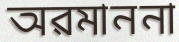
অৱমাননা